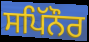
ਸਪਿੱਨੌਰ